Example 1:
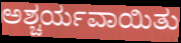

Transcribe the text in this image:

ಅಶ್ಚರ್ಯವಾಯಿತು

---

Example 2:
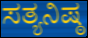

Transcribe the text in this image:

ಸತ್ಯನಿಷ್ಠ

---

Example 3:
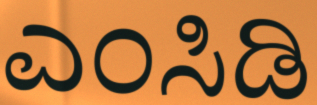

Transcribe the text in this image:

ಎಂಸಿಡಿ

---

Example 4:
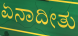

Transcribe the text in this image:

ಏನಾದೀತು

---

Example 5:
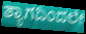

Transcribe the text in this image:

ತ್ಯಾಗದಿಂದಲೇ